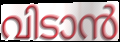
വിടാൻ